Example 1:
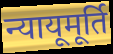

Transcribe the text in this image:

न्यायूमूर्ति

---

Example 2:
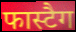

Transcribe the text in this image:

फास्‍टैग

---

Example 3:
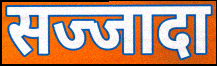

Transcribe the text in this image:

सज्जादा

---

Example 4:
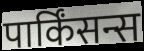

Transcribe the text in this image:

पार्किंसन्स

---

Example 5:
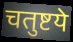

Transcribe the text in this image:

चतुष्टये